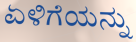
ಏಳಿಗೆಯನ್ನು